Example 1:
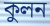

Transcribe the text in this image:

কুলন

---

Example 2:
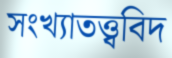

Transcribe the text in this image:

সংখ্যাতত্ত্ববিদ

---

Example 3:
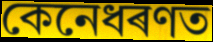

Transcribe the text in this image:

কেনেধৰণত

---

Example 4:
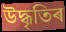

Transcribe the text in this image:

উদ্ধৃতিৰ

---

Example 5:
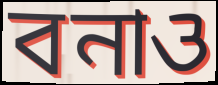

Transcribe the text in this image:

বনাও